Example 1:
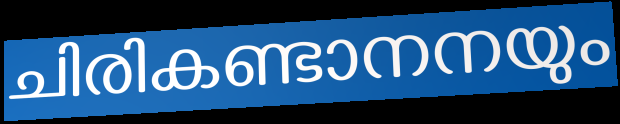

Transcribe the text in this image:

ചിരികണ്ടാനനയും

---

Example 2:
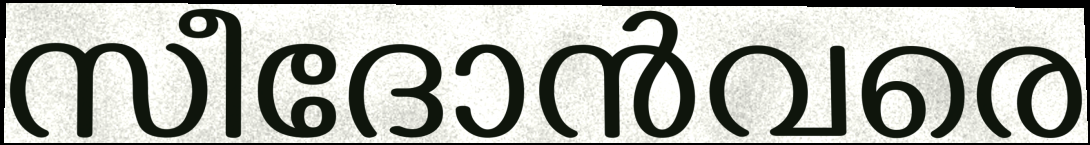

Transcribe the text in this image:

സീദോൻവരെ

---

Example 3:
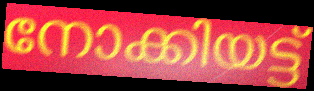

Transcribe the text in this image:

നോക്കിയട്ട്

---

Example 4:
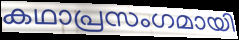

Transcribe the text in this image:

കഥാപ്രസംഗമായി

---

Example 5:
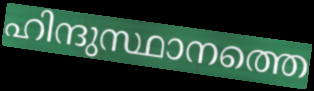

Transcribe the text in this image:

ഹിന്ദുസ്ഥാനത്തെ